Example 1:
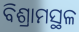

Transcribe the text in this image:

ବିଶ୍ରାମସ୍ଥଳ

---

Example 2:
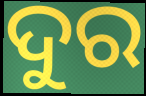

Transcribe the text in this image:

ଦୁର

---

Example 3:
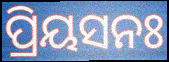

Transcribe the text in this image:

ପ୍ରିୟସନଃ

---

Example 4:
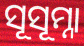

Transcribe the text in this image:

ସୂସୂମ୍ନା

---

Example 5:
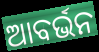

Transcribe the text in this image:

ଆବର୍ଭନ